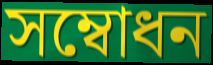
সম্বোধন